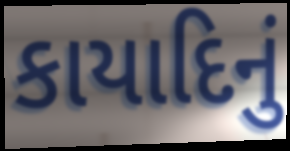
કાયાદિનું